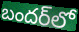
బందర్‌లో